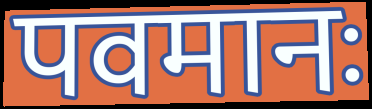
पवमानः